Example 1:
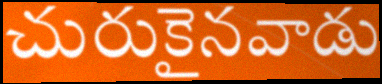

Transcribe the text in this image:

చురుకైనవాడు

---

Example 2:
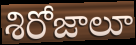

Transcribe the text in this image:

శిరోజాలూ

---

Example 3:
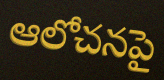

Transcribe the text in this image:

ఆలోచనపై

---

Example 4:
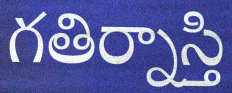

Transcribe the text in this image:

గతిర్నాస్తి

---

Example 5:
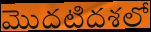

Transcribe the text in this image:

మొదటిదశలో